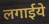
लगाईये